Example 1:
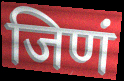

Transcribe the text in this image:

जिणं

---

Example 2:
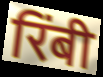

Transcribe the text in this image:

रिंबी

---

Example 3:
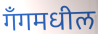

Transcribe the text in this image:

गँगमधील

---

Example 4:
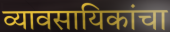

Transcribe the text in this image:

व्यावसायिकांचा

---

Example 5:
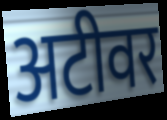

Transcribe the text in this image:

अटीवर